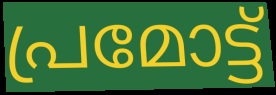
പ്രമോട്ട്